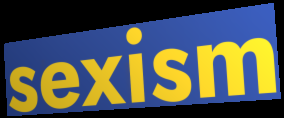
sexism